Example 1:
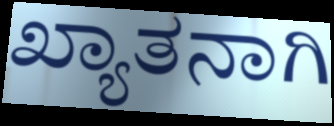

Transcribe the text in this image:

ಖ್ಯಾತನಾಗಿ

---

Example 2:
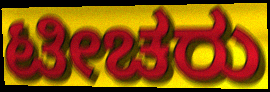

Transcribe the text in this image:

ಟೀಚರು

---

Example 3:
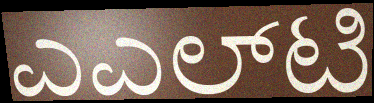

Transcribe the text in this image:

ಎಎಲ್‌ಟಿ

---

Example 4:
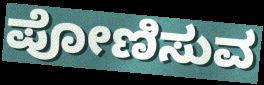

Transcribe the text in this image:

ಪೋಣಿಸುವ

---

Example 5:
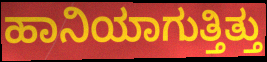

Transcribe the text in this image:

ಹಾನಿಯಾಗುತ್ತಿತ್ತು